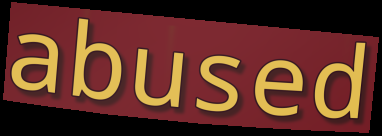
abused